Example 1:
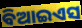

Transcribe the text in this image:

ବିଆଇଏସ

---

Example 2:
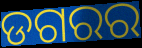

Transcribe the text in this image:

ଡଗରର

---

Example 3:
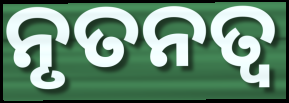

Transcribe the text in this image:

ନୃତନତ୍ୱ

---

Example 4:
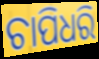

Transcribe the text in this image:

ଚାପିଧରି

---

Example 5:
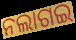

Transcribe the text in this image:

ନଲାଗଇ